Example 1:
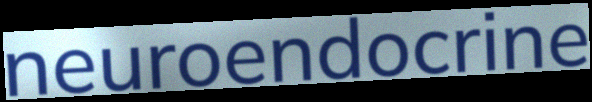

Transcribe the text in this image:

neuroendocrine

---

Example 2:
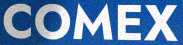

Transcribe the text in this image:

COMEX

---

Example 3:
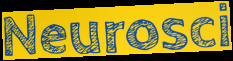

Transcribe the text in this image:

Neurosci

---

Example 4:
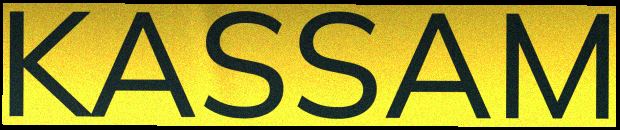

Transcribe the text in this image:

KASSAM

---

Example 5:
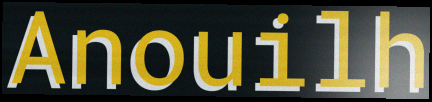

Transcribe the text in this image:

Anouilh